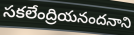
సకలేంద్రియనందనాని